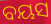
ବୟସ